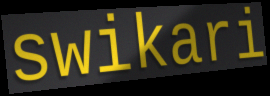
swikari